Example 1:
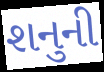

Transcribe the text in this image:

શનુની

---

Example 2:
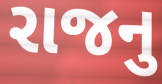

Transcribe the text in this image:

રાજનુ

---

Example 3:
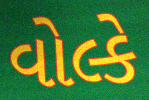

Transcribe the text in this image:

વોલ્કે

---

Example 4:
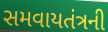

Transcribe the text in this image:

સમવાયતંત્રની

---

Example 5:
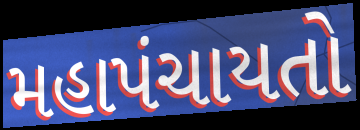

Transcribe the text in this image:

મહાપંચાયતો